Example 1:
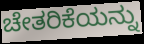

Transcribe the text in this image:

ಚೇತರಿಕೆಯನ್ನು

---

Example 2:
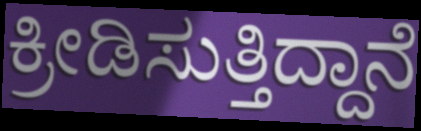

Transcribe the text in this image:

ಕ್ರೀಡಿಸುತ್ತಿದ್ದಾನೆ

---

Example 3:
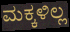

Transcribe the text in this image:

ಮಕ್ಕಳಿಲ್ಲ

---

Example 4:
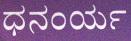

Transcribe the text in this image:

ಧನಂರ್ಯ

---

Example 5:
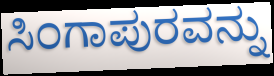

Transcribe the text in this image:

ಸಿಂಗಾಪುರವನ್ನು